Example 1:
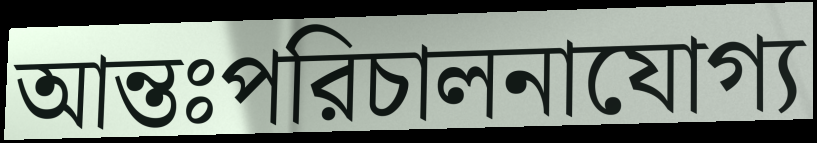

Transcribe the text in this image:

আন্তঃপরিচালনাযোগ্য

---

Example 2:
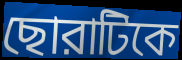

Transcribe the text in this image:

ছোরাটিকে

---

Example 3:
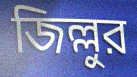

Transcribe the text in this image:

জিল্লুর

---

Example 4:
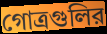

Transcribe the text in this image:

গোত্রগুলির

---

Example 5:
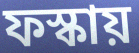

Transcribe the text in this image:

ফস্কায়